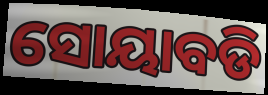
ସୋୟାବଡି